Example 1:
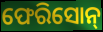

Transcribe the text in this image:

ଫେରିସୋନ୍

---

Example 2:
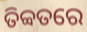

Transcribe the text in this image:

ତିବ୍ବତରେ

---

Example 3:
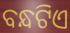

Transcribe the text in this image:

ବନ୍ଧଟିଏ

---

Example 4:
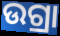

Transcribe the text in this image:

ଉଗ୍ରା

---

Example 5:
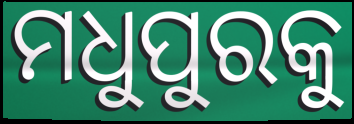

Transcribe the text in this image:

ମଧୁପୁରକୁ